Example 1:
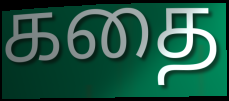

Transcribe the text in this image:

கதை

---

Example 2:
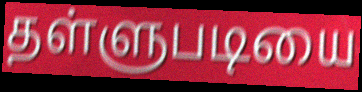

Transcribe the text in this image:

தள்ளுபடியை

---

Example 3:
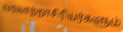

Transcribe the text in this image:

வரலாற்றாசிரியர்களும்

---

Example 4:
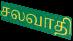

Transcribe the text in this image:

சலவாதி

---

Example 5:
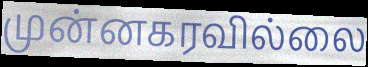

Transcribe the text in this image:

முன்னகரவில்லை